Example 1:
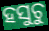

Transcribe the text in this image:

ହସୁଚୁ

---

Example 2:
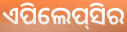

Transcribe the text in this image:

ଏପିଲେପ୍‌ସିର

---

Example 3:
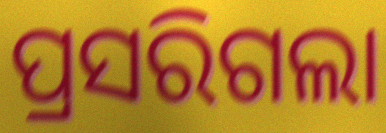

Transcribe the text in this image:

ପ୍ରସରିଗଲା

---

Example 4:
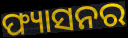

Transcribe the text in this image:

ଫ୍ୟାସନର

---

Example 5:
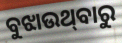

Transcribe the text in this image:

ବୁଝାଉଥ୍‌ବାରୁ